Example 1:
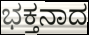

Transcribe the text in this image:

ಭಕ್ತನಾದ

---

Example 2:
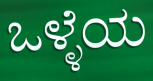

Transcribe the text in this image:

ಒಳ್ಳೆಯ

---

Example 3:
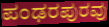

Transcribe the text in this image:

ಪಂಢರಪುರವು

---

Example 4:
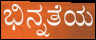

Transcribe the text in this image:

ಭಿನ್ನತೆಯ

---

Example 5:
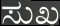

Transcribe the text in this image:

ಸುಖ